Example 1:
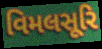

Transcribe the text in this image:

વિમલસૂરિ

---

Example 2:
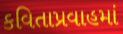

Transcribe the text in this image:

કવિતાપ્રવાહમાં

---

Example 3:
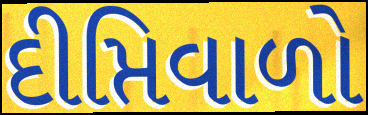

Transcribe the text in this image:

દીપ્તિવાળો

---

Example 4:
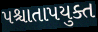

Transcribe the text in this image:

પશ્ચાતાપયુક્ત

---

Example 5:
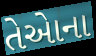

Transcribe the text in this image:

તેએાના